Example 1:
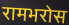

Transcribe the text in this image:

रामभरोस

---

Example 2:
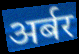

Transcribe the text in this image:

अर्बर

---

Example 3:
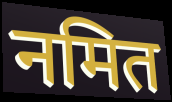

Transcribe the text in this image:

नमित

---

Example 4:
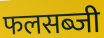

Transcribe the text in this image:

फलसब्जी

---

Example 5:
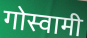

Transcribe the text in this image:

गोस्वामी